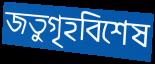
জতুগৃহবিশেষ